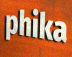
phika